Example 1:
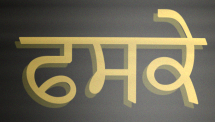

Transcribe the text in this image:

ਫਸਕੇ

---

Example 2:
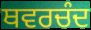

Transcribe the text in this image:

ਥਵਰਚੰਦ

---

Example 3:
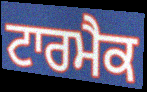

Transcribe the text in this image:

ਟਾਰਮੈਕ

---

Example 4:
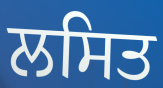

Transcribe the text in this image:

ਲਸਿਤ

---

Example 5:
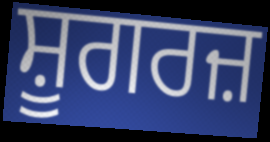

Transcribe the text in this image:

ਸ਼ੂਗਰਜ਼